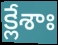
క్లేశాః